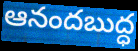
ఆనందబుద్ధ